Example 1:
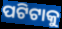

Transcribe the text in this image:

ପଟିଟାକୁ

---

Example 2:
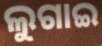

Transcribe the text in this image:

ଲୁଗାଇ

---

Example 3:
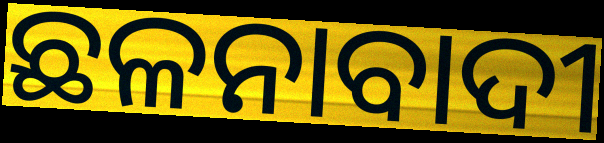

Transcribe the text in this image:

ଛଳନାବାଦୀ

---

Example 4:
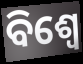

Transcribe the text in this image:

ବିଶ୍ଵେ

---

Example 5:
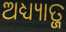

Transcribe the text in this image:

ଅଧ୍ୟ୍ୟାତ୍ଜ